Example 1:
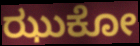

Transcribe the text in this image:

ಝುಕೋ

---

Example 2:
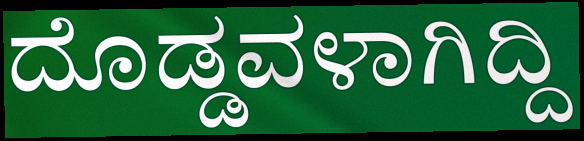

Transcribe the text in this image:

ದೊಡ್ಡವಳಾಗಿದ್ದಿ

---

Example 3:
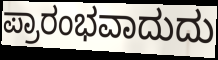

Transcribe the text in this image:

ಪ್ರಾರಂಭವಾದುದು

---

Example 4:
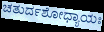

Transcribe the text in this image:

ಚತುರ್ದಶೋಧ್ಯಾಯಃ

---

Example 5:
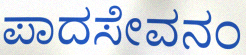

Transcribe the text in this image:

ಪಾದಸೇವನಂ